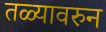
तळ्यावरुन